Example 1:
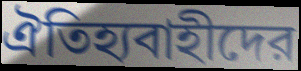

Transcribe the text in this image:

ঐতিহ্যবাহীদের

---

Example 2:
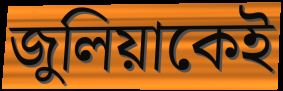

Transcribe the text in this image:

জুলিয়াকেই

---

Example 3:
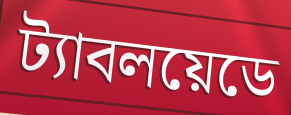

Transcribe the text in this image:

ট্যাবলয়েডে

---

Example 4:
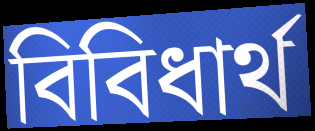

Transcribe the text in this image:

বিবিধার্থ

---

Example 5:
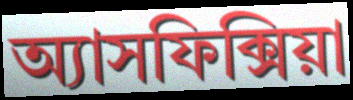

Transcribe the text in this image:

অ্যাসফিক্সিয়া